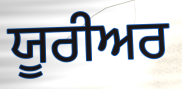
ਯੂਰੀਅਰ